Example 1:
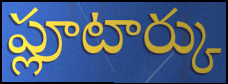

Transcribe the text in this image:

ప్లూటార్కు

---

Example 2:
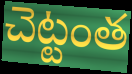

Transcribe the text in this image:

చెట్టంత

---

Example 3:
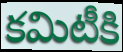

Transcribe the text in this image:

కమిటీకి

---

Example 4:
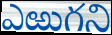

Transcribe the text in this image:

ఎఱుగని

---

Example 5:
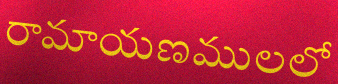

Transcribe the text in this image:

రామాయణములలో